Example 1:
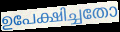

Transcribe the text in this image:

ഉപേക്ഷിച്ചതോ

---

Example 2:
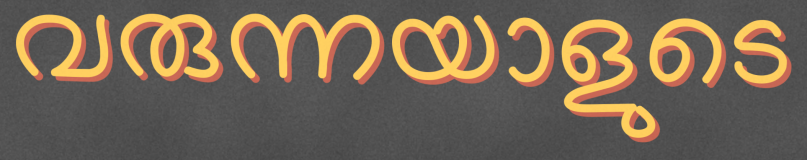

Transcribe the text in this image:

വരുന്നയാളുടെ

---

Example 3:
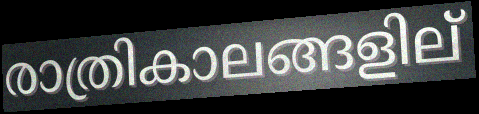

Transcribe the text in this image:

രാത്രികാലങ്ങളില്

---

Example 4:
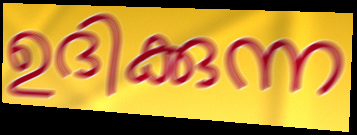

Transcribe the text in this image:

ഉദിക്കുന്ന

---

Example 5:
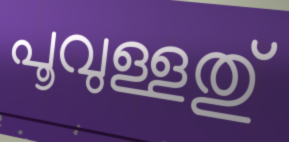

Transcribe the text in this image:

പൂവുള്ളതു്